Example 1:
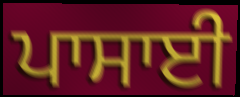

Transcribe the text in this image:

ਪਾਸਾਈ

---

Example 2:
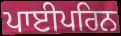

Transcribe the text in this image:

ਪਾਈਪਰਿਨ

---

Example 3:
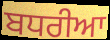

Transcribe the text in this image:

ਬਧਰੀਆ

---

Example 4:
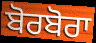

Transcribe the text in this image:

ਬੋਰਬੋਰਾ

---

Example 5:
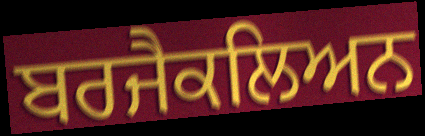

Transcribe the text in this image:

ਬਰਜੈਕਲਿਅਨ